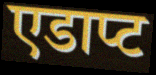
एडाप्ट